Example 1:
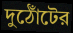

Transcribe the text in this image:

দুঠোঁটের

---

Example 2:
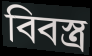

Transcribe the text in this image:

বিবস্ত্র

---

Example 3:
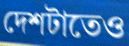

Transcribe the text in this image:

দেশটাতেও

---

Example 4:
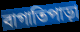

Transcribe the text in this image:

বাগাতিপাড়া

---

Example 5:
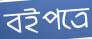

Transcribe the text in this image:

বইপত্রে